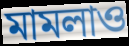
মামলাও